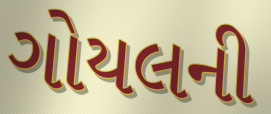
ગોયલની